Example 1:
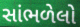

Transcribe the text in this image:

સાંભળેલો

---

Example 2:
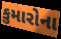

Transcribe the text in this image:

કુમારોના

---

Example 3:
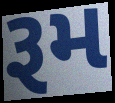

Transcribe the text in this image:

રૂમ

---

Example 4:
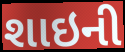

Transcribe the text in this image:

શાઇની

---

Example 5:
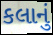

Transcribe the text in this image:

કલાનું